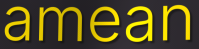
amean